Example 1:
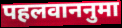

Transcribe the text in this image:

पहलवाननुमा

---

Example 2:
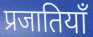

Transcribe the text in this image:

प्रजातियाँ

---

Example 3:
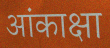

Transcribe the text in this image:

आंकाक्षा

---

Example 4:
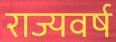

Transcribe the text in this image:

राज्यवर्ष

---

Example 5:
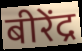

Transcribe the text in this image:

बीरेंद्र